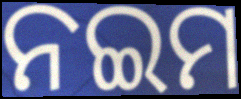
ନଇମ